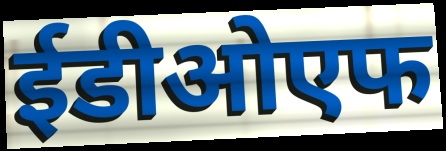
ईडीओएफ